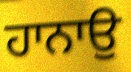
ਹਾਨਾਉ